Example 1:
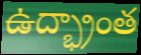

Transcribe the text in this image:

ఉద్భ్రాంత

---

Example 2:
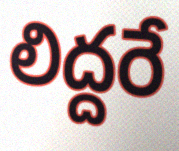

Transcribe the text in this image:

లిద్దరే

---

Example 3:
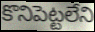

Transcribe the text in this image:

కొనిపెట్టలేని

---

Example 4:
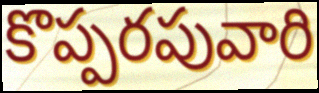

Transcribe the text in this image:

కొప్పరపువారి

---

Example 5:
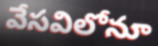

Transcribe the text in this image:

వేసవిలోనూ